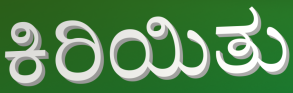
ಕಿರಿಯಿತು